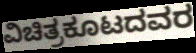
ವಿಚಿತ್ರಕೂಟದವರ